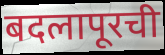
बदलापूरची